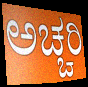
ಅಚ್ಚರಿ